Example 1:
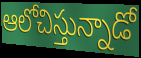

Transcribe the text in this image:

ఆలోచిస్తున్నాడో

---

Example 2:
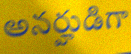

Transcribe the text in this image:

అనర్హుడిగా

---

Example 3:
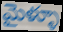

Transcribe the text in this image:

మైళ్ళూ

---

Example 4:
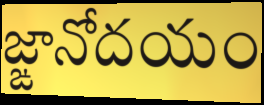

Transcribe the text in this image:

జ్ఙానోదయం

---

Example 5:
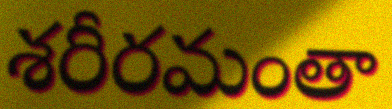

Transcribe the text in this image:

శరీరమంతా